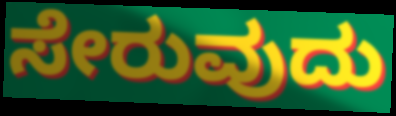
ಸೇರುವುದು